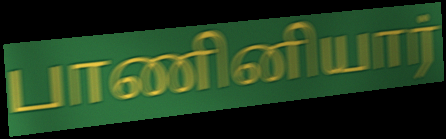
பாணினியார்